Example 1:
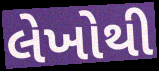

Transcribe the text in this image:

લેખોથી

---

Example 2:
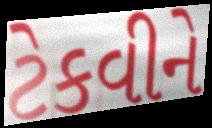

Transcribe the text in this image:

ટેકવીને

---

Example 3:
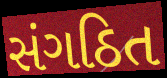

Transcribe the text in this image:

સંગઠિત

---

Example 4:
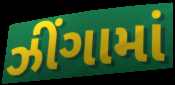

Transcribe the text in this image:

ઝીંગામાં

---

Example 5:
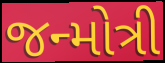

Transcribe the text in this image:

જન્મોત્રી